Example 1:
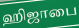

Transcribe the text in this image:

ஹிஜாபை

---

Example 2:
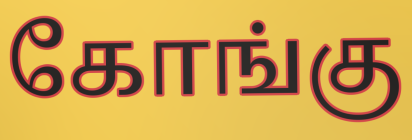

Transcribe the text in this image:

கோங்கு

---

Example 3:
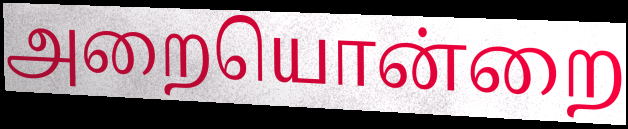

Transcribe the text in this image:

அறையொன்றை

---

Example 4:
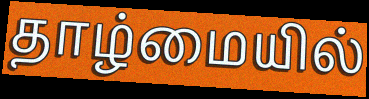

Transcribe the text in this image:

தாழ்மையில்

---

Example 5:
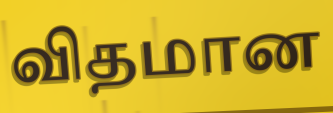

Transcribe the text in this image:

விதமான